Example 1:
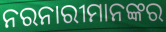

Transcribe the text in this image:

ନରନାରୀମାନଙ୍କର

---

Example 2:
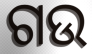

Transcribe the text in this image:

ଗଉ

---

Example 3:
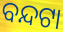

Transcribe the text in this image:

ବନ୍ଦଟା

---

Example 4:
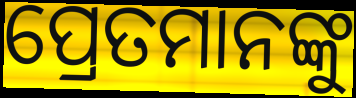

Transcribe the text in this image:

ପ୍ରେତମାନଙ୍କୁ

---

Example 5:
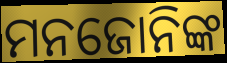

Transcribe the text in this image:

ମନଜୋନିଙ୍କ